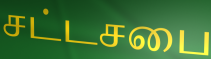
சட்டசபை